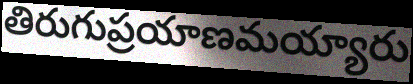
తిరుగుప్రయాణమయ్యారు